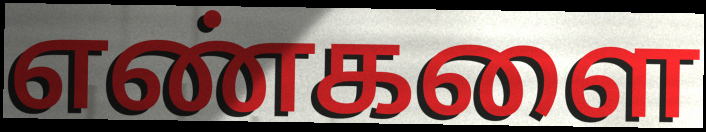
எண்களை